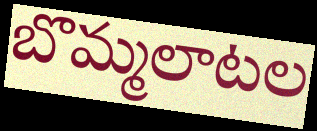
బొమ్మలాటల